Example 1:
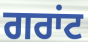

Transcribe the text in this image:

ਗਰਾਂਟ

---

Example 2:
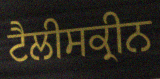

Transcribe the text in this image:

ਟੈਲੀਸਕ੍ਰੀਨ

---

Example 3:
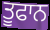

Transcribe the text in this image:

ਤੂਫਾਨ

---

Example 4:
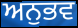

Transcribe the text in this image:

ਅਨੁਭਵ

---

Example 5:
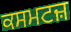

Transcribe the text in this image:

ਕਸਮਟਜ਼